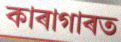
কাৰাগাৰত